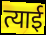
त्याई